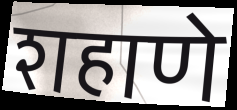
शहाणे